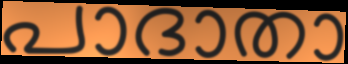
പാദാതാ